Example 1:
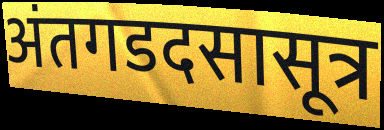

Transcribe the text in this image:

अंतगडदसासूत्र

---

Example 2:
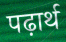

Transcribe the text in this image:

पढ़ार्थ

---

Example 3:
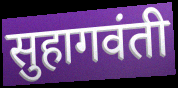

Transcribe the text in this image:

सुहागवंती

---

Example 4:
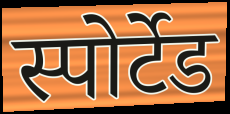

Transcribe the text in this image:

स्पोर्टेड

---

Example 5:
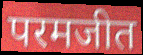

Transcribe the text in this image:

परमजीत